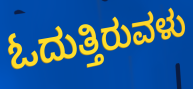
ಓದುತ್ತಿರುವಳು